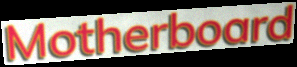
Motherboard